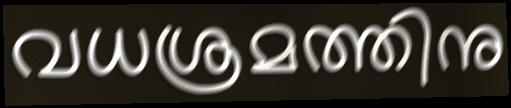
വധശ്രമത്തിനു